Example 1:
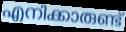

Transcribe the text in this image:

എനിക്കാരുണ്ട്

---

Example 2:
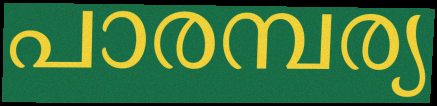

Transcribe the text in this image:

പാരമ്പര്യ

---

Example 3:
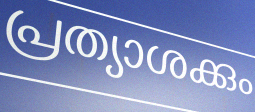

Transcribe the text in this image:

പ്രത്യാശക്കും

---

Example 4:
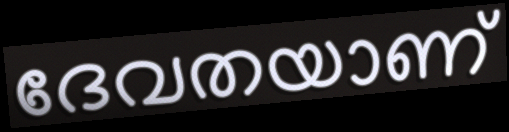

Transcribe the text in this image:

ദേവതയാണ്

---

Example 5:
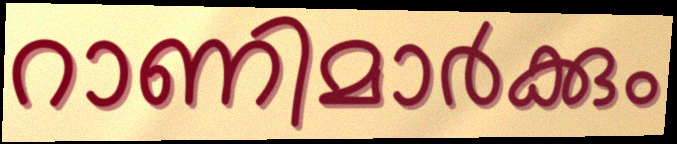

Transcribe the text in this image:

റാണിമാർക്കും